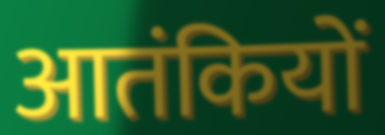
आतंकियों